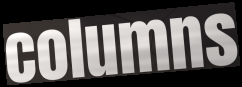
columns